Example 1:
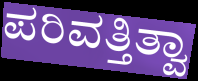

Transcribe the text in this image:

ಪರಿವತ್ತಿತ್ವಾ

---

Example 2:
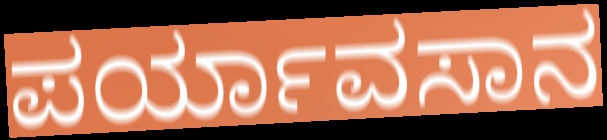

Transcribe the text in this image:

ಪರ್ಯಾವಸಾನ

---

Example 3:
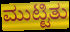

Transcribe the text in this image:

ಮುಟ್ಟಿತು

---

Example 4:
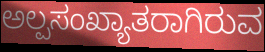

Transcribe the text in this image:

ಅಲ್ಪಸಂಖ್ಯಾತರಾಗಿರುವ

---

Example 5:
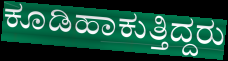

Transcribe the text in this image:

ಕೂಡಿಹಾಕುತ್ತಿದ್ದರು